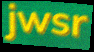
jwsr